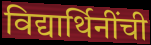
विद्यार्थिनींची